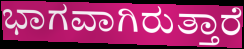
ಭಾಗವಾಗಿರುತ್ತಾರೆ